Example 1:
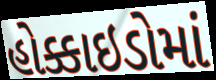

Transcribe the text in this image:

હોક્કાઇડોમાં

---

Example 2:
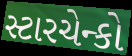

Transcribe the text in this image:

સ્ટારચેન્કો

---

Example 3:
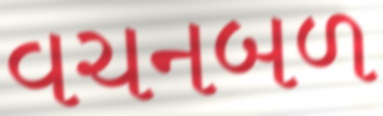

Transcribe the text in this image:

વચનબળ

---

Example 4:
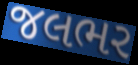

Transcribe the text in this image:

જલભર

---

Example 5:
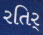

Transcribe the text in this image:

રતિર્